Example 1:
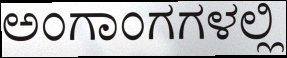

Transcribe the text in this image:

ಅಂಗಾಂಗಗಳಲ್ಲಿ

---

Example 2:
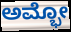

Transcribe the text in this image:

ಅಮ್ಭೋ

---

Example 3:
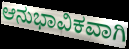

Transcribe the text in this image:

ಆನುಭಾವಿಕವಾಗಿ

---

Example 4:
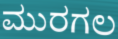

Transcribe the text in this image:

ಮುರಗಲ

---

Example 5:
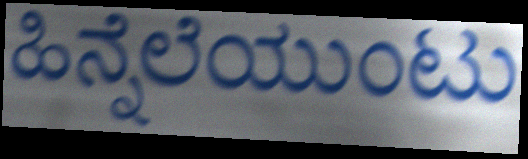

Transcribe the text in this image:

ಹಿನ್ನೆಲೆಯುಂಟು